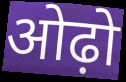
ओढ़ो